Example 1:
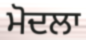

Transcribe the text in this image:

ਮੋਦਲਾ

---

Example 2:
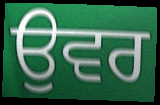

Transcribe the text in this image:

ਉਵਰ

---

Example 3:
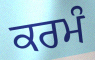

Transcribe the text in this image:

ਕਰਮੰ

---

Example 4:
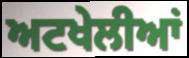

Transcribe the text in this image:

ਅਟਖੇਲੀਆਂ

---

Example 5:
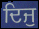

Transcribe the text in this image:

ਦਿਜੁ